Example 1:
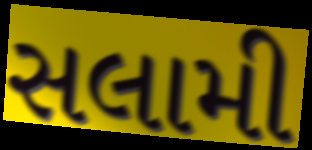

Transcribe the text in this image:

સલામી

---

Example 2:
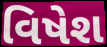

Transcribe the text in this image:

વિષેશ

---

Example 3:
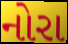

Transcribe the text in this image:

નોરા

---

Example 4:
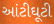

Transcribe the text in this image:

આંટીઘૂટી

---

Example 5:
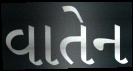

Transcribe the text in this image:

વાતેન